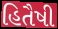
હિતૈષી